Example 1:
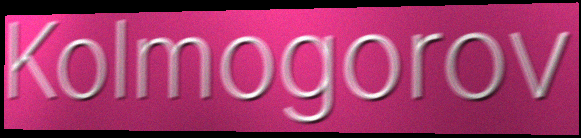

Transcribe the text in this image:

Kolmogorov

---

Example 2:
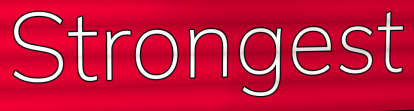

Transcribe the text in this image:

Strongest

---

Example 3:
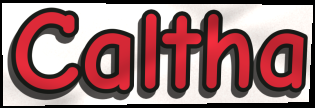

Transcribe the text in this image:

Caltha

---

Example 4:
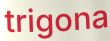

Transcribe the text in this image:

trigona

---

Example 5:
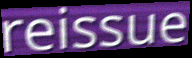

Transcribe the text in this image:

reissue